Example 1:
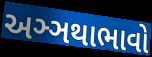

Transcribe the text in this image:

અઞ્ઞથાભાવો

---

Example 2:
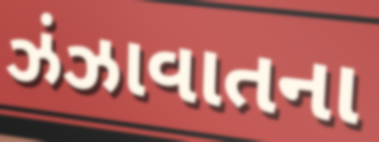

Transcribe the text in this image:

ઝંઝાવાતના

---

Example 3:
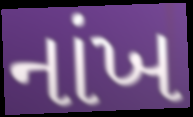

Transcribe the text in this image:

નાંખ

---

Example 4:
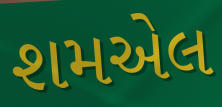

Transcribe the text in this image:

શમએલ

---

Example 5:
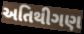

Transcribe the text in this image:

અતિથીગણ